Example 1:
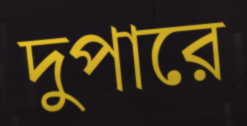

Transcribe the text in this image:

দুপারে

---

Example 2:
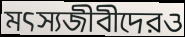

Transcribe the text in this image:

মৎস্যজীবীদেরও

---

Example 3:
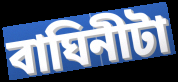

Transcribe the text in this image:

বাঘিনীটা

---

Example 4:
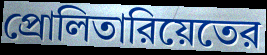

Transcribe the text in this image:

প্রোলিতারিয়েতের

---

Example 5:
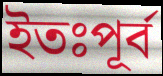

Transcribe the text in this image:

ইতঃপূর্ব